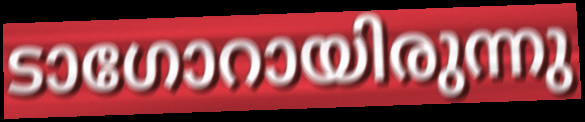
ടാഗോറായിരുന്നു